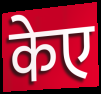
केए